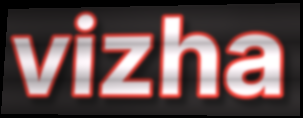
vizha